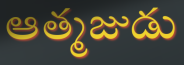
ఆత్మజుడు